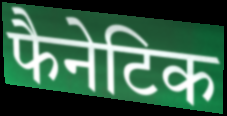
फैनेटिक